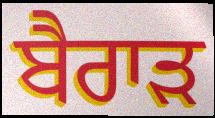
ਬੈਰਾੜ